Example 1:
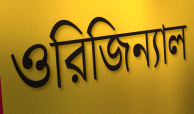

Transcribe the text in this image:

ওরিজিন্যাল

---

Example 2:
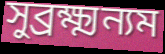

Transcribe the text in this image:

সুব্রক্ষ্মন্যম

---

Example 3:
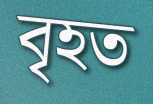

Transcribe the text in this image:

বৃহত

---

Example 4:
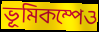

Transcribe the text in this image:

ভূমিকম্পেও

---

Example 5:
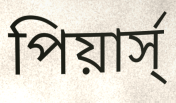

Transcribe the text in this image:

পিয়ার্স্